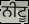
ਨੀਟੂ